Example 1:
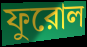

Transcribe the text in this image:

ফুরোল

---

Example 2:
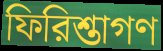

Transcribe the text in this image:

ফিরিশ্তাগণ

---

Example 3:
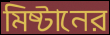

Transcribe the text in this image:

মিষ্টানের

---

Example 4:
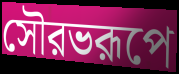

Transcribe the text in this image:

সৌরভরূপে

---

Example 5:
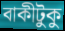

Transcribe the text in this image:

বাকীটুকু